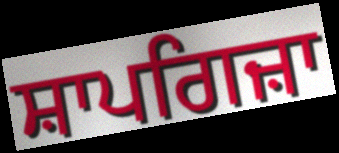
ਸ਼ਾਪਗਿਜ਼ਾ